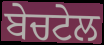
ਬੇਚਟੇਲ